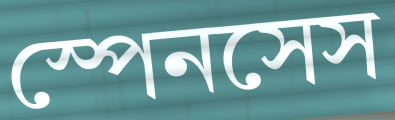
স্পেনসেস